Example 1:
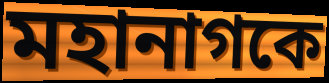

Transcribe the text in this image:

মহানাগকে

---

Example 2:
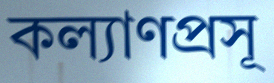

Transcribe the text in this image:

কল্যাণপ্রসূ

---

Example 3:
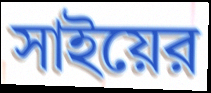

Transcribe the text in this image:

সাইয়ের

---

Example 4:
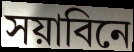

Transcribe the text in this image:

সয়াবিনে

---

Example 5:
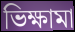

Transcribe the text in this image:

ভিক্ষামা